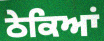
ਠੇਕਿਆਂ